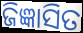
ଜିଜ୍ଞାସିତ